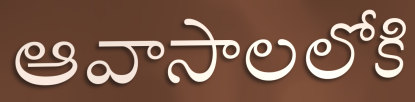
ఆవాసాలలోకి